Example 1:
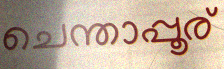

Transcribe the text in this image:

ചെന്താപ്പൂര്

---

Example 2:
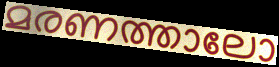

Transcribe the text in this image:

മരണത്താലോ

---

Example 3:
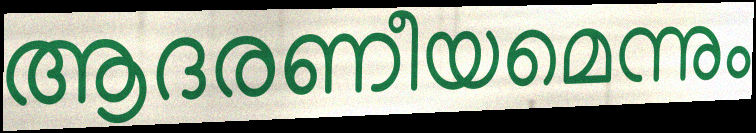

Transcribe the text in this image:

ആദരണീയമെന്നും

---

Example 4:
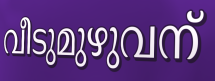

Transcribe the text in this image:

വീടുമുഴുവന്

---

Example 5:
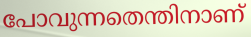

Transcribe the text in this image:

പോവുന്നതെന്തിനാണ്